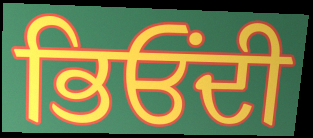
ਭਿਓਂਦੀ